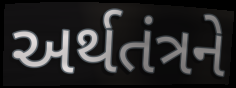
અર્થતંત્રને